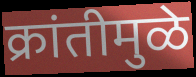
क्रांतीमुळे